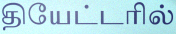
தியேட்டரில்